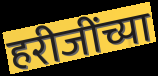
हरीजींच्या